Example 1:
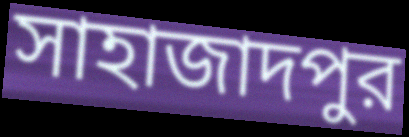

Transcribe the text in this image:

সাহাজাদপুর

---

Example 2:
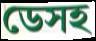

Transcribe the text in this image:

ডেসহ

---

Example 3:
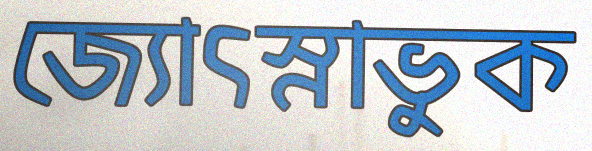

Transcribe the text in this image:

জ্যোৎস্নাভুক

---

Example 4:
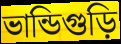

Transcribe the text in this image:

ভান্ডিগুড়ি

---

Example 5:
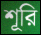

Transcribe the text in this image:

শূরি